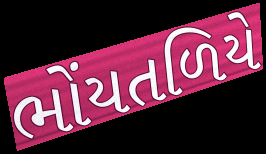
ભોંયતળિયે